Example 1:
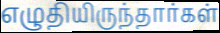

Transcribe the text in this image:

எழுதியிருந்தார்கள்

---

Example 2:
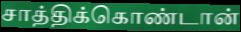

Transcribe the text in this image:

சாத்திக்கொண்டான்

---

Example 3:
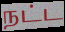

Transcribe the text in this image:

நட்ட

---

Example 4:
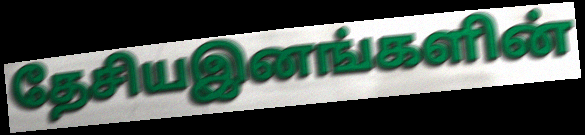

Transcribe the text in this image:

தேசியஇனங்களின்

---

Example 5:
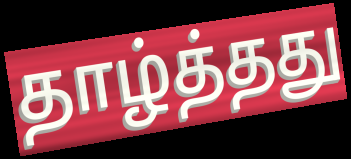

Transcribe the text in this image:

தாழ்த்தது